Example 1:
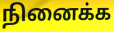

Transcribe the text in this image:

நினைக்க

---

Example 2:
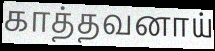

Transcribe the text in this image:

காத்தவனாய்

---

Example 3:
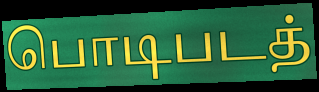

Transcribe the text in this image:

பொடிபடத்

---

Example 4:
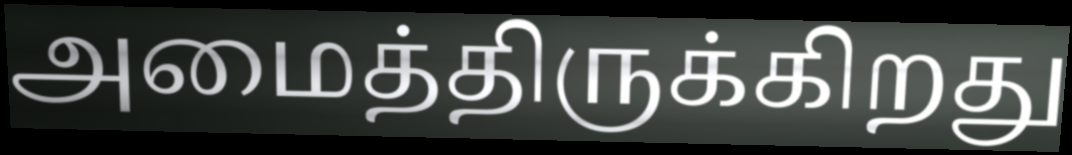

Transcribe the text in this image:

அமைத்திருக்கிறது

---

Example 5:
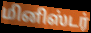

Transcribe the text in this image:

மினிஸ்டர்